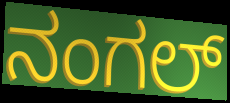
ನಂಗಲ್